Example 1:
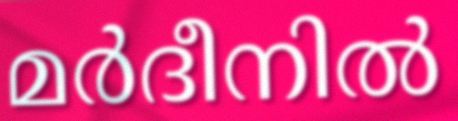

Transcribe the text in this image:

മർദീനിൽ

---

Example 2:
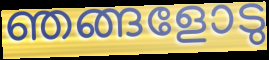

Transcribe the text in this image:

ഞങ്ങളോടു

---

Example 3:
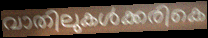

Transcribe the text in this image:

വാതിലുകൾക്കരികെ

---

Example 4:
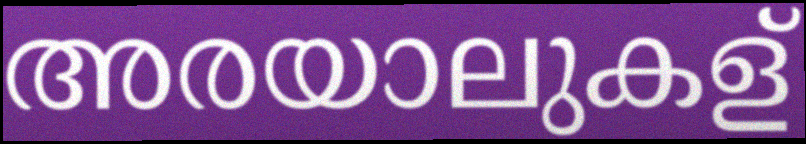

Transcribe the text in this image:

അരയാലുകള്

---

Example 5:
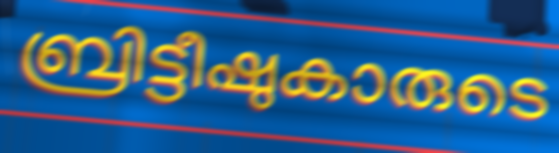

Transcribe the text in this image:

ബ്രിട്ടീഷുകാരുടെ